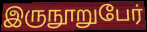
இருநூறுபேர்